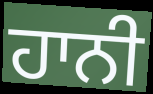
ਹਾਨੀ